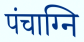
पंचाग्नि